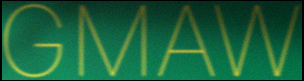
GMAW